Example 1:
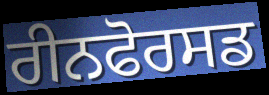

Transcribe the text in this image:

ਰੀਨਫੋਰਸਡ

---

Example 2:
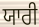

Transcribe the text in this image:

ਯਾਰੀ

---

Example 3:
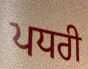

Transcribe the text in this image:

ਪਧਰੀ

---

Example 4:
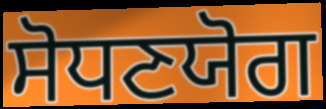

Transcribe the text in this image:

ਸੋਧਣਯੋਗ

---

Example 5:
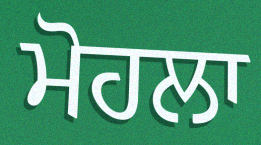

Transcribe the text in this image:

ਮੋਹਲਾ